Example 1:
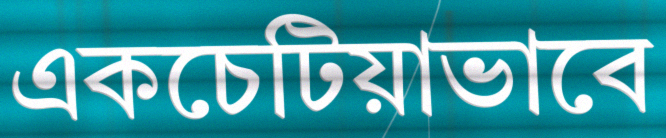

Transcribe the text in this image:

একচেটিয়াভাবে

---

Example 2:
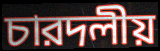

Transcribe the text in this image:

চারদলীয়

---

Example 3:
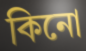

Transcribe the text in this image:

কিনো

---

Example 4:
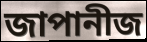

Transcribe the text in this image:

জাপানীজ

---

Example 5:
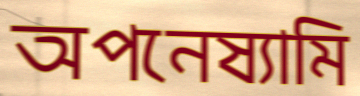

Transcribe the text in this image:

অপনেষ্যামি